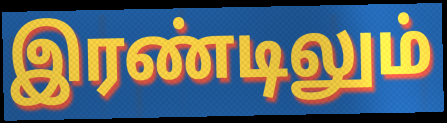
இரண்டிலும்